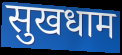
सुखधाम